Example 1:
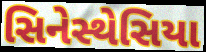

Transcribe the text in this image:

સિનેસ્થેસિયા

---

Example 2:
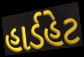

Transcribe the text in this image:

હાર્ડહેટ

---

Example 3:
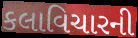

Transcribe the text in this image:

કલાવિચારની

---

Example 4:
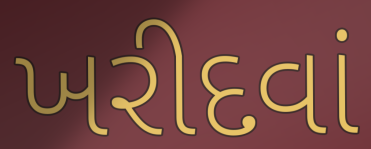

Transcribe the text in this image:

ખરીદવાં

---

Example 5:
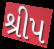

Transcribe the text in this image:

શ્રીપ